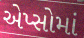
એપ્સોમાં